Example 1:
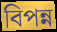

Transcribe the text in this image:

বিপন্ন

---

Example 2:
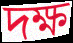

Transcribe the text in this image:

দক্ষ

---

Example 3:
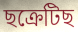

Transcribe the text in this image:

ছক্ৰেটিছ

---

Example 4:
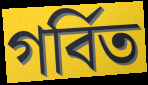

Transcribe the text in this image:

গৰ্বিত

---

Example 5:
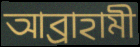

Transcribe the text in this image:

আব্ৰাহামী